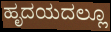
ಹೃದಯದಲ್ಲೂ